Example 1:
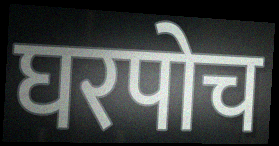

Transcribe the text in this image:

घरपोच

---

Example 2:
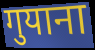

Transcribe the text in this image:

गुयाना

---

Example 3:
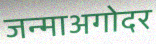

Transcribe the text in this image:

जन्माअगोदर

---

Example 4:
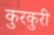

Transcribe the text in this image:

कुरकुरी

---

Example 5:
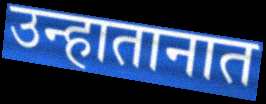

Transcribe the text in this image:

उन्हातानात